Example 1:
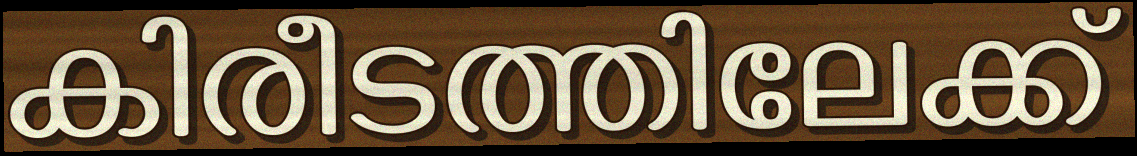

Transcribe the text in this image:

കിരീടത്തിലേക്ക്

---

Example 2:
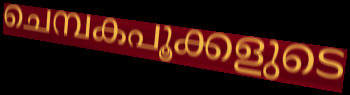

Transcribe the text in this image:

ചെമ്പകപൂക്കളുടെ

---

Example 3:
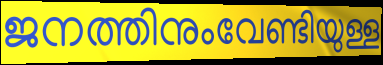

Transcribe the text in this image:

ജനത്തിനുംവേണ്ടിയുള്ള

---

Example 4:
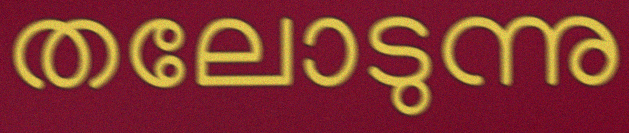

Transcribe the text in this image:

തലോടുന്നു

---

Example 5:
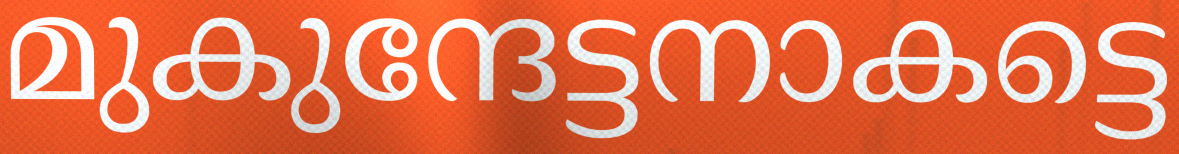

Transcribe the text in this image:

മുകുന്ദേട്ടനാകട്ടെ